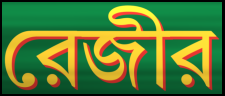
রেজীর